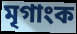
মৃগাংক